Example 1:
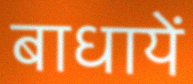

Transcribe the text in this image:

बाधायें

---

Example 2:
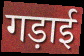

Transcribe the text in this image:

गड़ाई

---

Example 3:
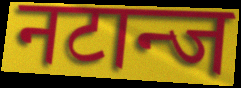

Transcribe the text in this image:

नटान्ज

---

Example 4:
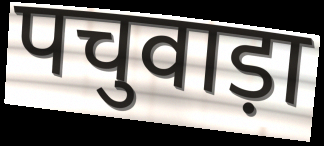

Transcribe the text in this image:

पचुवाड़ा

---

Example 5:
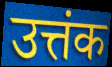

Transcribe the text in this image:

उत्तंक